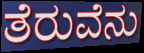
ತೆರುವೆನು